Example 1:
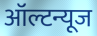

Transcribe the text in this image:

ऑल्टन्यूज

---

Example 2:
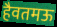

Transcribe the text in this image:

हैवतमऊ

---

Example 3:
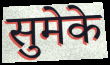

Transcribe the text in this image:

सुमेके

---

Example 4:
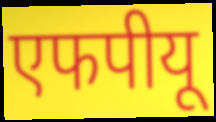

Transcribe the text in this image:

एफपीयू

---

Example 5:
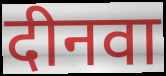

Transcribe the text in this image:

दीनवा